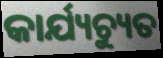
କାର୍ଯ୍ୟଚ୍ୟୁତ